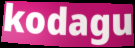
kodagu